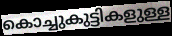
കൊച്ചുകുട്ടികളുള്ള